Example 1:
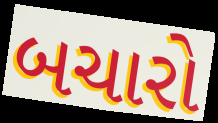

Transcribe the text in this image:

બચારો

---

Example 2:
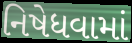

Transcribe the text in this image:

નિષેધવામાં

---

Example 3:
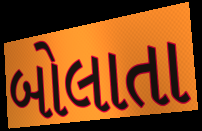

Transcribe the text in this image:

બોલાતા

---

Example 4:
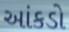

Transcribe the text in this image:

આંકડો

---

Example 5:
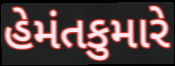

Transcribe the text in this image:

હેમંતકુમારે